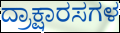
ದ್ರಾಕ್ಷಾರಸಗಳ